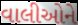
વાલીઓને